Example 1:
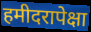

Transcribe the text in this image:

हमीदरापेक्षा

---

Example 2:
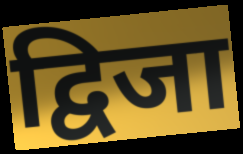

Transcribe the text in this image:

द्विजा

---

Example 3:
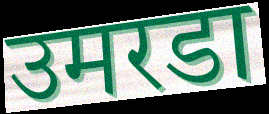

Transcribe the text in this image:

उमरडा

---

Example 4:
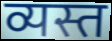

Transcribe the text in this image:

व्यस्त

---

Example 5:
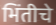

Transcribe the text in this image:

भिंतीचे